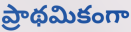
ప్రాథమికంగా